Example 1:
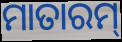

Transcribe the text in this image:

ମାତାରମ୍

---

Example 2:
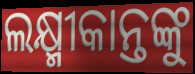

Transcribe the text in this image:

ଲକ୍ଷ୍ମୀକାନ୍ତଙ୍କୁ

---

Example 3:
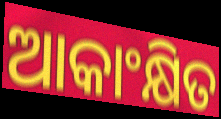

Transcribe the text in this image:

ଆକାଂକ୍ଷିତ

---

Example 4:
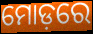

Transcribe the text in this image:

ମୋଡ଼ରେ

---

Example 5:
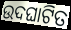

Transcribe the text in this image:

ଉଦଘାଟିତ